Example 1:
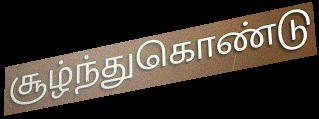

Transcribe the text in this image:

சூழ்ந்துகொண்டு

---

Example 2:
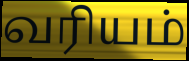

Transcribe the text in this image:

வரியம்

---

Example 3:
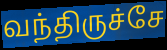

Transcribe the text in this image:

வந்திருச்சே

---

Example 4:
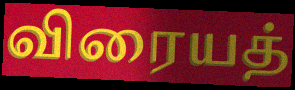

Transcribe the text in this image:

விரையத்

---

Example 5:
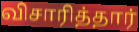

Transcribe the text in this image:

விசாரித்தார்